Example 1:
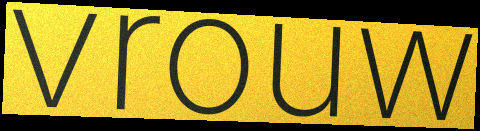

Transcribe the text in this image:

vrouw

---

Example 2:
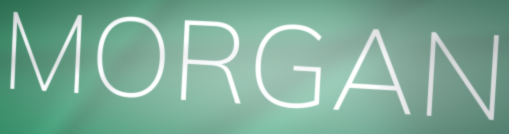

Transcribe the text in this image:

MORGAN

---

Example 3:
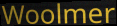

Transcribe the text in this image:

Woolmer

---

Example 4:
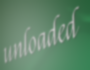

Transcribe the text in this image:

unloaded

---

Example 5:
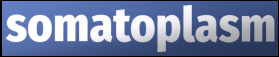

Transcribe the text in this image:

somatoplasm